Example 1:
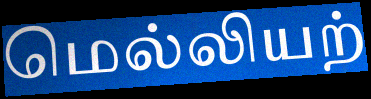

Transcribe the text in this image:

மெல்லியற்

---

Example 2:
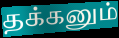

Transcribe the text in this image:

தக்கனும்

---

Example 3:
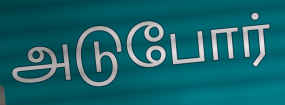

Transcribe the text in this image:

அடுபோர்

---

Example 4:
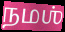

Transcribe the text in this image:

நமஶ்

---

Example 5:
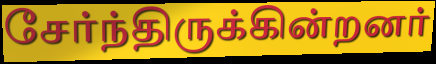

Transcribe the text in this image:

சேர்ந்திருக்கின்றனர்